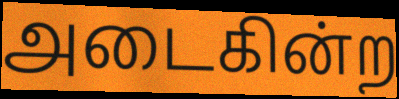
அடைகின்ற